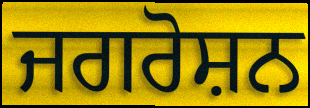
ਜਗਰੋਸ਼ਨ